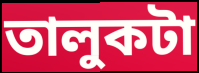
তালুকটা